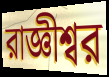
রাজ্ঞীশ্বর